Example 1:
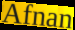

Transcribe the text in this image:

Afnan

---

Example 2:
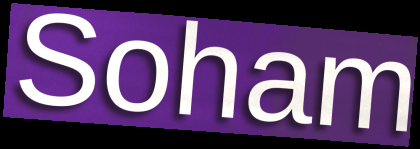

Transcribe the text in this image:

Soham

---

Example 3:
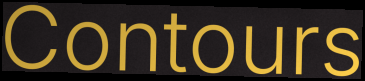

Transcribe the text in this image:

Contours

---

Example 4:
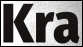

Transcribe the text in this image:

Kra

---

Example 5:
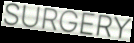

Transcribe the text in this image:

SURGERY